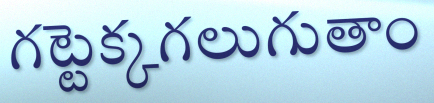
గట్టెక్కగలుగుతాం